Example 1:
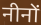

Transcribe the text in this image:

नीनों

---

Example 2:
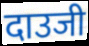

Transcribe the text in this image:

दाउजी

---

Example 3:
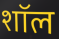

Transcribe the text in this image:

शॉल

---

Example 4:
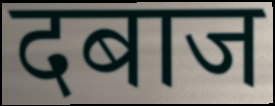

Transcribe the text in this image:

दबाज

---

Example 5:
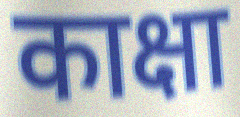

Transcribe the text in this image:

काक्षा